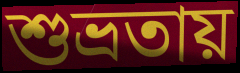
শুভ্রতায়